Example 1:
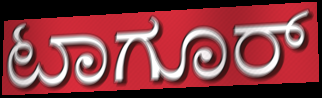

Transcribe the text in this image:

ಟಾಗೂರ್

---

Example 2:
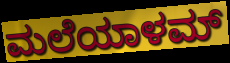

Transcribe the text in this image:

ಮಲೆಯಾಳಮ್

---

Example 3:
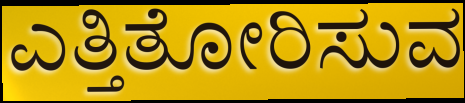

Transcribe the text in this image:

ಎತ್ತಿತೋರಿಸುವ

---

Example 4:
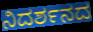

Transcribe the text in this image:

ನಿದರ್ಶನದ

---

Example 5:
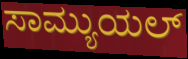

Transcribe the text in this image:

ಸಾಮ್ಯುಯಲ್